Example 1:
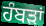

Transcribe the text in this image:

ਹੰਬੜਾਂ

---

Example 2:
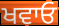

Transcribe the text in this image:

ਖਵਾਓ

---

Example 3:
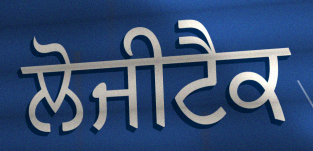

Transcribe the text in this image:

ਲੋਜੀਟੈਕ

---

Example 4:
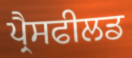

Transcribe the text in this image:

ਪ੍ਰੈਸਫੀਲਡ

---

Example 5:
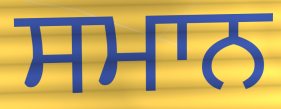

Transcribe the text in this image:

ਸਮਾਨ